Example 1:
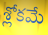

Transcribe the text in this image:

శ్లోకమే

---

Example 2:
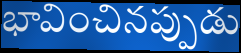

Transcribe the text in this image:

భావించినప్పుడు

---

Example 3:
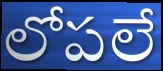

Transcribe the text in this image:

లోపలే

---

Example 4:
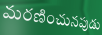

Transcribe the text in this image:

మరణించునపుడు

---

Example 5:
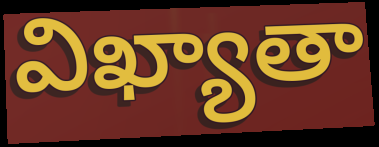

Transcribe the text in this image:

విఖ్యాతా